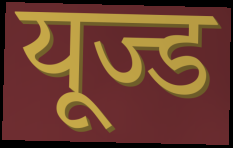
यूज्ड